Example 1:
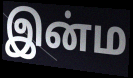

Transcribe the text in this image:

இன்ம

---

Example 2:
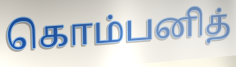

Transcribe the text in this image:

கொம்பனித்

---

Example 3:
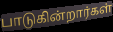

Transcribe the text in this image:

பாடுகின்றார்கள்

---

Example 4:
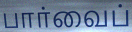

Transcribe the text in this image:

பார்வைப்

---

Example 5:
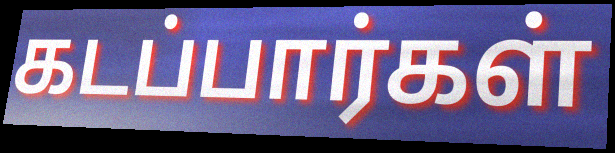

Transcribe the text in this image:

கடப்பார்கள்